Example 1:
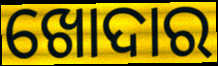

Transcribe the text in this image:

ଖୋଦାର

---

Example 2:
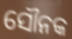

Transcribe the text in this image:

ସୌନକ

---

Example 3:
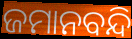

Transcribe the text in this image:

ଜମାନବନ୍ଦି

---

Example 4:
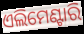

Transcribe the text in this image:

ଏଲିମେଣ୍ଟାରି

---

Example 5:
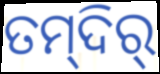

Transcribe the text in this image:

ତମ୍‍ଦିର୍